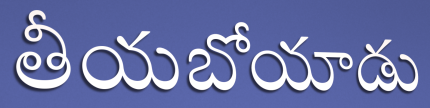
తీయబోయాడు